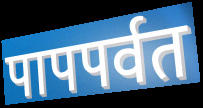
पापपर्वत